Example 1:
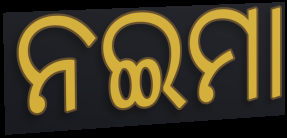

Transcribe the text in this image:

ନଇମା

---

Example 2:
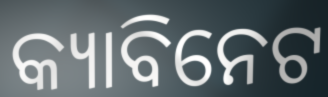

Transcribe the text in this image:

କ୍ୟାବିନେଟ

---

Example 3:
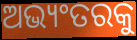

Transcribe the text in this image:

ଅଭ୍ୟଂତରକୁ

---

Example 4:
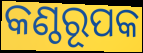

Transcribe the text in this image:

କଣ୍ଠରୂପକ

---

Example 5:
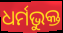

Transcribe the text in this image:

ଧର୍ମଭୁକ୍ତ